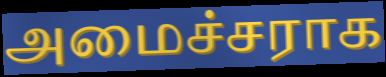
அமைச்சராக